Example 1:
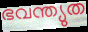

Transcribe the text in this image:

ഭവന്ത്യുത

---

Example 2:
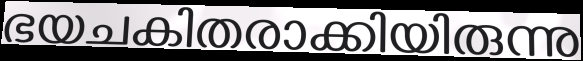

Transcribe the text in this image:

ഭയചകിതരാക്കിയിരുന്നു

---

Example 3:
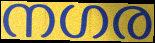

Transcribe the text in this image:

നഗര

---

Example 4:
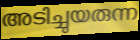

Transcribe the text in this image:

അടിച്ചുയരുന്ന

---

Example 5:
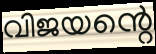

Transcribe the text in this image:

വിജയന്റെ